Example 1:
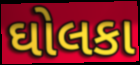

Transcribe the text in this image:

ઘોલકા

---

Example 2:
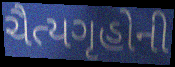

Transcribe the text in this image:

ચૈત્યગૃહોની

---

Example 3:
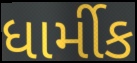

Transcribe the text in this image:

ધાર્મીક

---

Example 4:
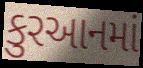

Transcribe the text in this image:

કુરઆનમાં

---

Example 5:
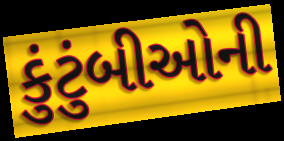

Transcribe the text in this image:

કુંટુંબીઓની